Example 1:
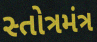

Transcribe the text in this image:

સ્તોત્રમંત્ર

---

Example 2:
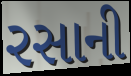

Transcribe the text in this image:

રસાની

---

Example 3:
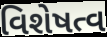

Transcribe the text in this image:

વિશેષત્વ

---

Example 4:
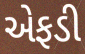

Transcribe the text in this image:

એફડી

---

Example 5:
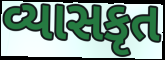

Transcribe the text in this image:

વ્યાસકૃત